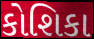
કોશિકા